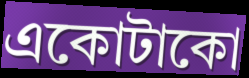
একোটাকো